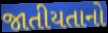
જાતીયતાનો